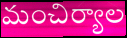
మంచిర్యాల